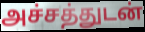
அச்சத்துடன்